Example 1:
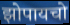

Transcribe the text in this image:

झोपायचो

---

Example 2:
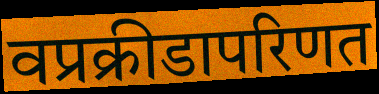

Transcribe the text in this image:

वप्रक्रीडापरिणत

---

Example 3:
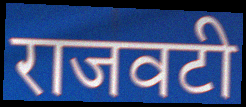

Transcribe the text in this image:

राजवटी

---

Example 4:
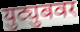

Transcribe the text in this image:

युट्युबवर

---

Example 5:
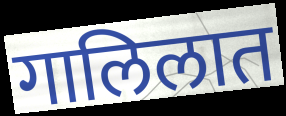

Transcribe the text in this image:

गालिलात